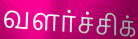
வளர்ச்சிக்